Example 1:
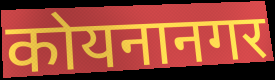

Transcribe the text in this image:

कोयनानगर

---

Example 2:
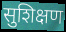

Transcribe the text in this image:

सुशिक्षण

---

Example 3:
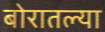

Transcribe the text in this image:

बोरातल्या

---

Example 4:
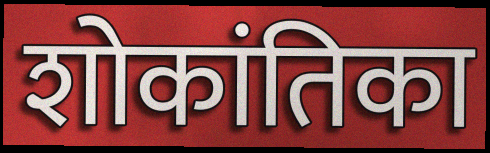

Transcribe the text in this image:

शोकांतिका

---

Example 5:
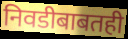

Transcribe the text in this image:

निवडीबाबतही